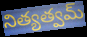
నిత్యత్వమ్